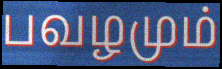
பவழமும்